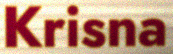
Krisna